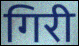
गिरी